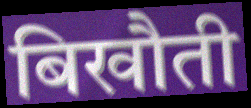
बिखौती